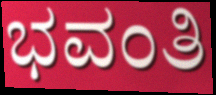
ಭವಂತಿ